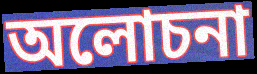
অলোচনা